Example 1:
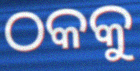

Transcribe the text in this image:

ଠକକୁ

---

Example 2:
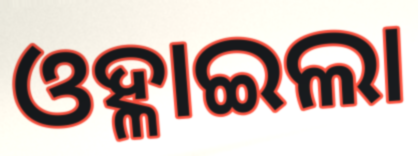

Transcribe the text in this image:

ଓହ୍ଳାଇଲା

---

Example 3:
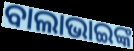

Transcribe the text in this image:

ବାଲାଭାଇଙ୍କ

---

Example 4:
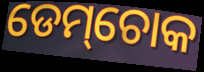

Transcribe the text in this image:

ଡେମ୍‌ଚୋକ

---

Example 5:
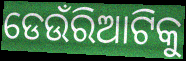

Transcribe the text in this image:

ଡେଉଁରିଆଟିକୁ